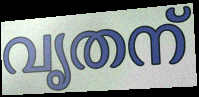
വൃതന്